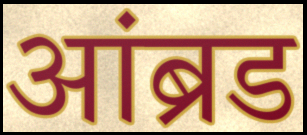
आंब्रड